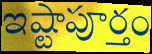
ఇష్టాపూర్తం